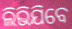
ଲିଭିଯିବେ